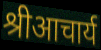
श्रीआचार्य